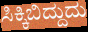
ಸಿಕ್ಕಿಬಿದ್ದುದು